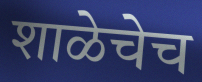
शाळेचेच